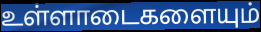
உள்ளாடைகளையும்